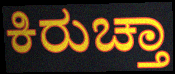
ಕಿರುಚ್ತಾ